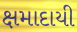
ક્ષમાદાયી